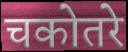
चकोतरे